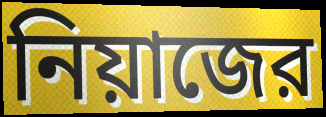
নিয়াজের